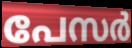
പേസർ